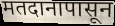
मतदानापासून